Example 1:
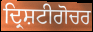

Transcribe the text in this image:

ਦ੍ਰਿਸ਼ਟੀਗੋਚਰ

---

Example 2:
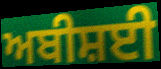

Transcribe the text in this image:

ਅਬੀਸ਼ਈ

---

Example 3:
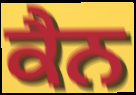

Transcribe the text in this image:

ਕੈਨ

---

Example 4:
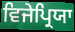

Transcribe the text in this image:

ਵਿਜੇਪ੍ਰਿਯਾ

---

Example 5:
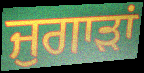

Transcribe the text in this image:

ਜੁਗਾੜਾਂ